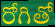
రోగితో